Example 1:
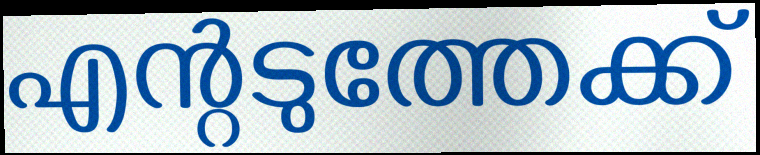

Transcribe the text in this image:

എന്റടുത്തേക്ക്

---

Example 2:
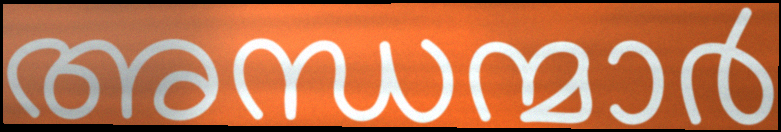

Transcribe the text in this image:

അന്ധന്മാർ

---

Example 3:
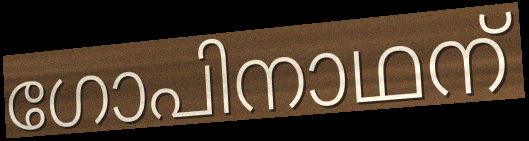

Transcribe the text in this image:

ഗോപിനാഥന്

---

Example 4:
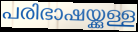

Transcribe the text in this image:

പരിഭാഷയ്ക്കുള്ള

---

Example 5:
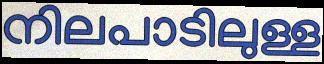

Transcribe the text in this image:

നിലപാടിലുള്ള